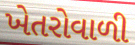
ખેતરોવાળી